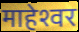
माहेश्वर